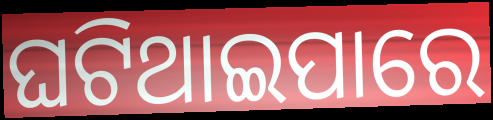
ଘଟିଥାଇପାରେ